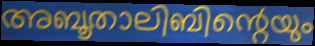
അബൂതാലിബിന്റെയും